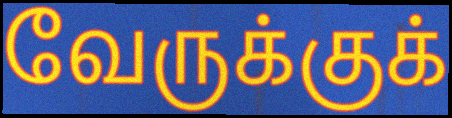
வேருக்குக்